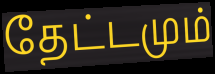
தேட்டமும்